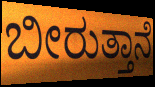
ಬೀರುತ್ತಾನೆ